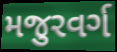
મજુરવર્ગ